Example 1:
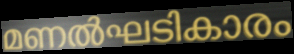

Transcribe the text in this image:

മണൽഘടികാരം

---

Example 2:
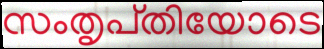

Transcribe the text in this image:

സംതൃപ്‌തിയോടെ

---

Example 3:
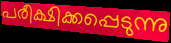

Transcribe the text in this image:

പരീക്ഷിക്കപ്പെടുന്നു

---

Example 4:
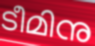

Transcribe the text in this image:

ടീമിനു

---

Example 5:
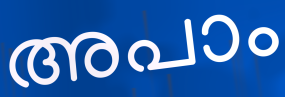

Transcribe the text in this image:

അപാം